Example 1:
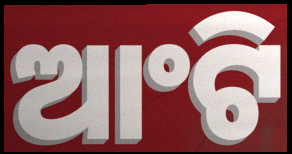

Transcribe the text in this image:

ଆଂଟି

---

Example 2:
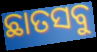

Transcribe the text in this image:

ଛାତସବୁ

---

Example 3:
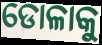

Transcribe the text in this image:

ଡୋଳାକୁ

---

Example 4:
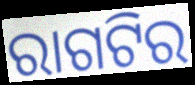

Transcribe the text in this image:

ରାଗଟିର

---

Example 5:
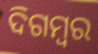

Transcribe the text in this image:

ଦିଗମ୍ବର